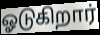
ஓடுகிறார்